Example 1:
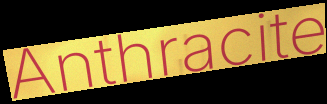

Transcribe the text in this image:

Anthracite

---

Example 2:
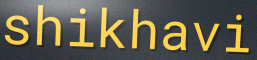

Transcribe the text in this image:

shikhavi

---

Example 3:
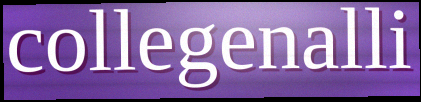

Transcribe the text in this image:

collegenalli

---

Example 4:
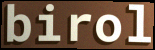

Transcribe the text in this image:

birol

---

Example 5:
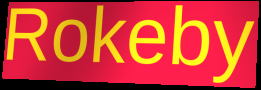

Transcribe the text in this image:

Rokeby